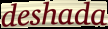
deshada